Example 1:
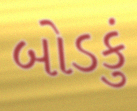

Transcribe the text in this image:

બોડકું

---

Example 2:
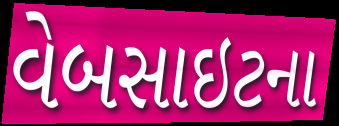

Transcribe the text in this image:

વેબસાઇટના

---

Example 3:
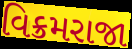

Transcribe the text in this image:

વિક્રમરાજા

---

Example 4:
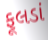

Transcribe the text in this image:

ફૂલડાં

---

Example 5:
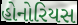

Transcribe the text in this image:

હોનોરિયસ